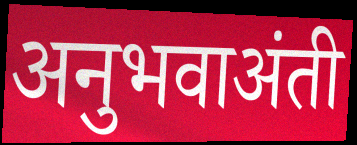
अनुभवाअंती